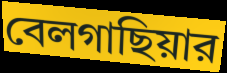
বেলগাছিয়ার